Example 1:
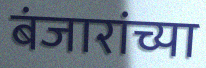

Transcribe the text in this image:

बंजारांच्या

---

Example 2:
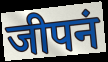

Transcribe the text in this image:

जीपनं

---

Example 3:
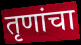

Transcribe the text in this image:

तृणांचा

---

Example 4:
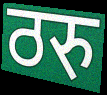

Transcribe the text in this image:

ठरु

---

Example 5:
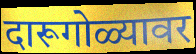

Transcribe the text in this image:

दारूगोळ्यावर